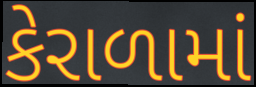
કેરાળામાં